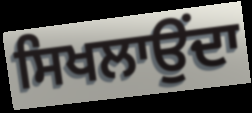
ਸਿਖਲਾਉਂਦਾ